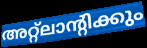
അറ്റ്ലാന്റിക്കും